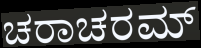
ಚರಾಚರಮ್